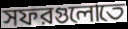
সফরগুলোতে